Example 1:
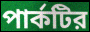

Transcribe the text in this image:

পার্কটির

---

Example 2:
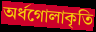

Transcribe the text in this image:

অর্ধগোলাকৃতি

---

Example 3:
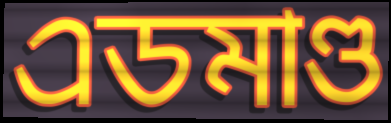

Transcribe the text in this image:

এডমাণ্ড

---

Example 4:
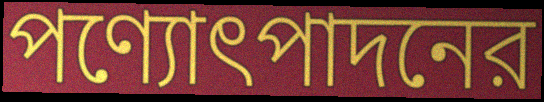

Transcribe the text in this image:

পণ্যোৎপাদনের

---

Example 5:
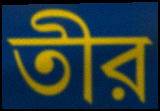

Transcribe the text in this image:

তীর